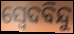
ସ୍ୱେଦବିନ୍ଦୁ